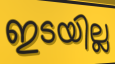
ഇടയില്ല